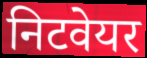
निटवेयर